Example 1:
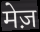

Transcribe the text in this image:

मेज़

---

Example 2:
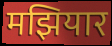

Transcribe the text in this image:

मझियार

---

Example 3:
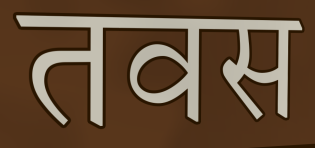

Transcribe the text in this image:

तवस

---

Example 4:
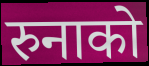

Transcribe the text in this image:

रुनाको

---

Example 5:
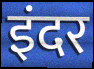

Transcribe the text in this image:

इंदर